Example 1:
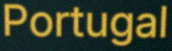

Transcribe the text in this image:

Portugal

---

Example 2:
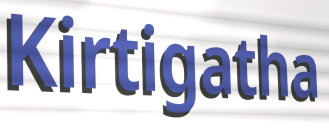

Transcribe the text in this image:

Kirtigatha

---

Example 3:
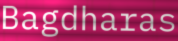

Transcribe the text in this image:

Bagdharas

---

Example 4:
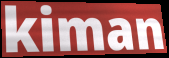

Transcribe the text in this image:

kiman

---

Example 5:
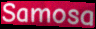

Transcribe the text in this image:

Samosa